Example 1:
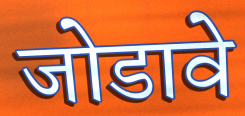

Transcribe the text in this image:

जोडावे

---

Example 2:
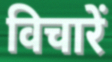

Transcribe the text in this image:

विचारें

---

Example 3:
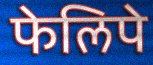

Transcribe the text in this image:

फेलिपे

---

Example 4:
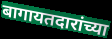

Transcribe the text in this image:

बागायतदारांच्या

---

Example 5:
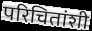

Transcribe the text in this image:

परिचितांशी